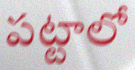
పట్టాలో